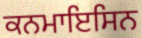
ਕਨਮਾਇਸਿਨ